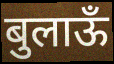
बुलाऊँ